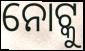
ନୋଟ୍କୁ